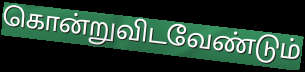
கொன்றுவிடவேண்டும்